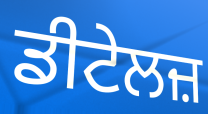
ਡੀਟੇਲਜ਼